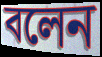
বলেন